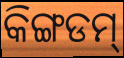
କିଙ୍ଗଡମ୍